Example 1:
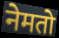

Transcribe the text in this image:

नेमतो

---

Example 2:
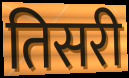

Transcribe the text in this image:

तिसरी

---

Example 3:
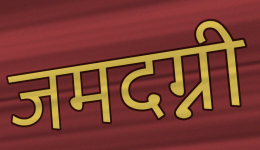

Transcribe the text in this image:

जमदग्नी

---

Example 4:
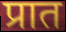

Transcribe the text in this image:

प्रात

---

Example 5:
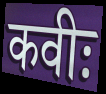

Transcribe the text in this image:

कवीः